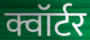
क्वॉर्टर